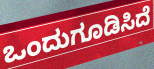
ಒಂದುಗೂಡಿಸಿದೆ